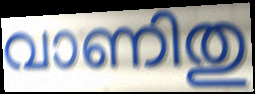
വാണിതു